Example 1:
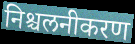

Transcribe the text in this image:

निश्चलनीकरण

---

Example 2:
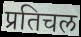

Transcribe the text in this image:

प्रतिचल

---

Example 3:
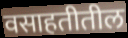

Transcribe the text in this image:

वसाहतीतील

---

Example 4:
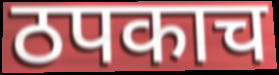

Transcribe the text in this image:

ठपकाच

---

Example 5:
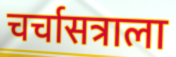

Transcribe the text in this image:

चर्चासत्राला